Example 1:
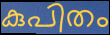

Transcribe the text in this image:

കുപിതം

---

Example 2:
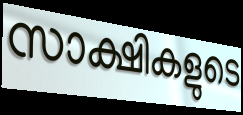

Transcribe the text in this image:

സാക്ഷികളുടെ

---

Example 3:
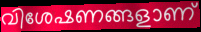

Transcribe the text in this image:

വിശേഷണങ്ങളാണ്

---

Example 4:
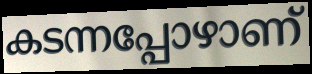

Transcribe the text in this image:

കടന്നപ്പോഴാണ്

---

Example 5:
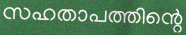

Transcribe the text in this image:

സഹതാപത്തിന്റെ